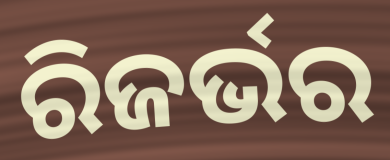
ରିଜର୍ଭର